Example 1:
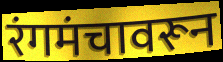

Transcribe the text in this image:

रंगमंचावरून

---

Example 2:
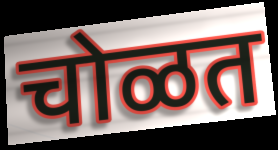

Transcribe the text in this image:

चोळत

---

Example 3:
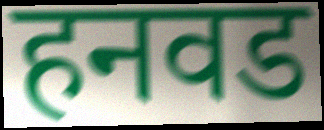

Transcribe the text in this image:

हनवड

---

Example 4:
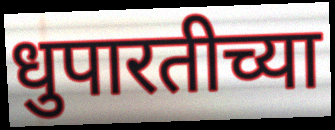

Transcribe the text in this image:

धुपारतीच्या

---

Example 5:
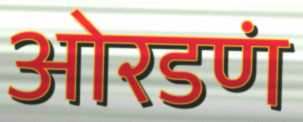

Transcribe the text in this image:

ओरडणं